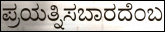
ಪ್ರಯತ್ನಿಸಬಾರದೆಂಬ